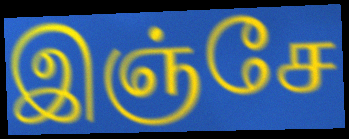
இஞ்சே